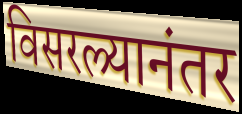
विसरल्यानंतर